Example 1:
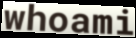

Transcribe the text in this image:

whoami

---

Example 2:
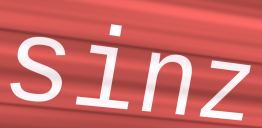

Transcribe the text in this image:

sinz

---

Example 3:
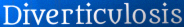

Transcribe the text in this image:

Diverticulosis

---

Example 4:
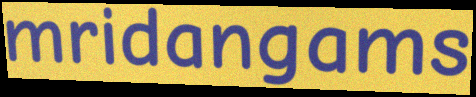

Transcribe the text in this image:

mridangams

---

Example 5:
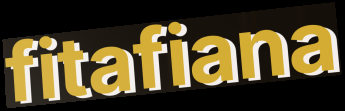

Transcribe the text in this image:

fitafiana